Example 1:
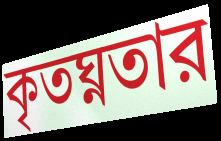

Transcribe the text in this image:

কৃতঘ্নতার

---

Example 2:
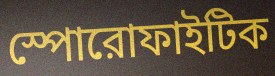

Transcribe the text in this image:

স্পোরোফাইটিক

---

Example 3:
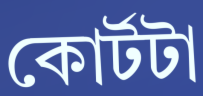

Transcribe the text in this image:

কোর্টটা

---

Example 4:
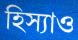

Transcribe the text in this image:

হিস্যাও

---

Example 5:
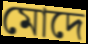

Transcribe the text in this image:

মোদে